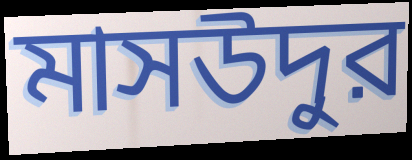
মাসউদুর